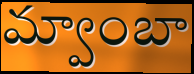
మ్వాంబా